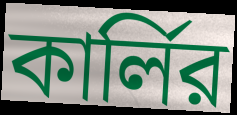
কার্লির